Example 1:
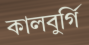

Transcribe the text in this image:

কালবুর্গি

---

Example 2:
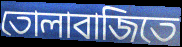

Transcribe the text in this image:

তোলাবাজিতে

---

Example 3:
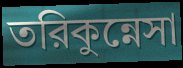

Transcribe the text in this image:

তরিকুন্নেসা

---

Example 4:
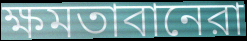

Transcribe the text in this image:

ক্ষমতাবানেরা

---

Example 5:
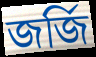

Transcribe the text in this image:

জর্জি